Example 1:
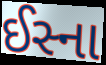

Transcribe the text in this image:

ઈસ્ના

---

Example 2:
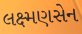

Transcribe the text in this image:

લક્ષ્મણસેન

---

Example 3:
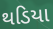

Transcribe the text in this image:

થડિયા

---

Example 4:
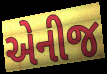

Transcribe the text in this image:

એનીજ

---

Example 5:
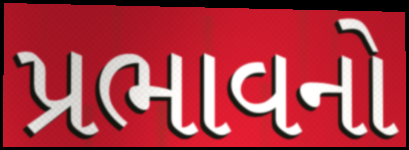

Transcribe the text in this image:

પ્રભાવનો